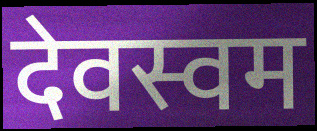
देवस्वम